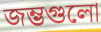
জম্ভগুলো